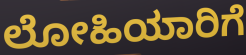
ಲೋಹಿಯಾರಿಗೆ